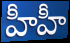
హీహీ